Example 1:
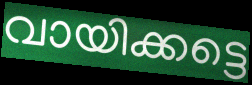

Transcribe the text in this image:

വായിക്കട്ടെ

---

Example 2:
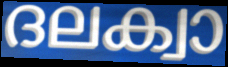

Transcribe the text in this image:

ദലക്വാ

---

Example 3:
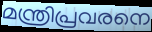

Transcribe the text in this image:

മന്ത്രിപ്രവരനെ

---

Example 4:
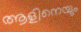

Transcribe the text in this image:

ആളിനെയും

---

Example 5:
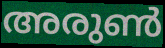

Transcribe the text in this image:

അരുൺ